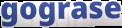
gograse